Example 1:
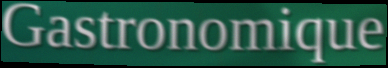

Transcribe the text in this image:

Gastronomique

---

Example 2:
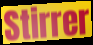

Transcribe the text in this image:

Stirrer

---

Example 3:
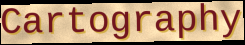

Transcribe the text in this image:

Cartography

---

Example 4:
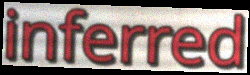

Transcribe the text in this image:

inferred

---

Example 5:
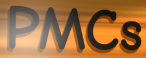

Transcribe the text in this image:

PMCs